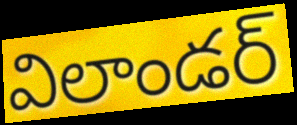
విలాండర్